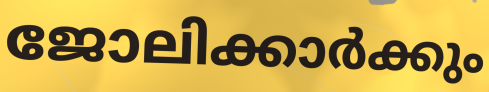
ജോലിക്കാർക്കും